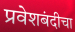
प्रवेशबंदीचा